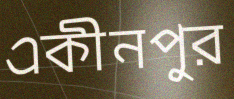
একীনপুর